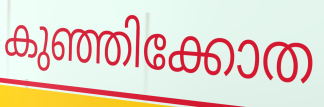
കുഞ്ഞിക്കോത